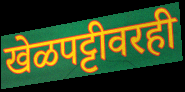
खेळपट्टीवरही